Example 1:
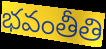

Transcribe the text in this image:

భవంతీతి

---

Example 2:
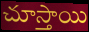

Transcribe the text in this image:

చూస్తాయి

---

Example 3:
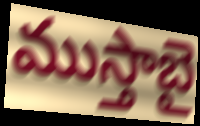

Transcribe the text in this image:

ముస్తాబై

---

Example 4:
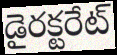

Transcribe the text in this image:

డైరక్టరేట్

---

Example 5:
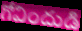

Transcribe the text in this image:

గోవిందుడి